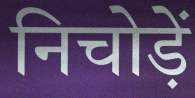
निचोड़ें